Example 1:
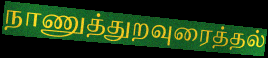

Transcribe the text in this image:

நாணுத்துறவுரைத்தல்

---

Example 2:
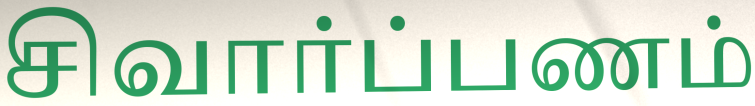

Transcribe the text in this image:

சிவார்ப்பணம்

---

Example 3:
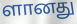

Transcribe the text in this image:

ளானது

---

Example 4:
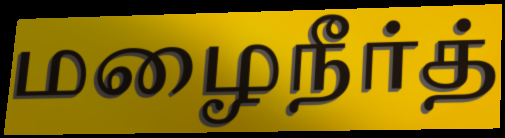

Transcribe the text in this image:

மழைநீர்த்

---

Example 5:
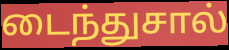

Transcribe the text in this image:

டைந்துசால்